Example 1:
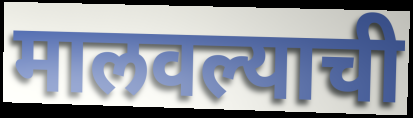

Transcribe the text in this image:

मालवल्याची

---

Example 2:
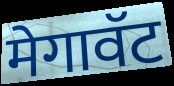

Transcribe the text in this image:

मेगावॅट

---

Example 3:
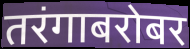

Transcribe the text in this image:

तरंगाबरोबर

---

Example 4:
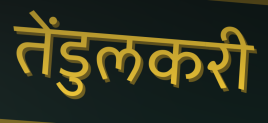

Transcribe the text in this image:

तेंडुलकरी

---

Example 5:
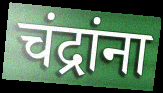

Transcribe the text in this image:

चंद्रांना